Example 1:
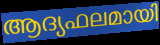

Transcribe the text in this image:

ആദ്യഫലമായി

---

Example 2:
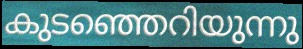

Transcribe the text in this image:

കുടഞ്ഞെറിയുന്നു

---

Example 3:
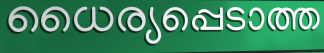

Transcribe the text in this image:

ധൈര്യപ്പെടാത്ത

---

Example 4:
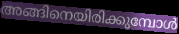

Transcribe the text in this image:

അങ്ങിനെയിരിക്കുമ്പോൾ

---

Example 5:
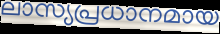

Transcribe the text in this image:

ലാസ്യപ്രധാനമായ